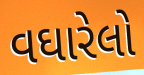
વઘારેલો